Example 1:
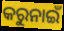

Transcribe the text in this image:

କରୁନାଇଁ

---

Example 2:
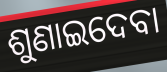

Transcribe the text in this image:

ଶୁଣାଇଦେବା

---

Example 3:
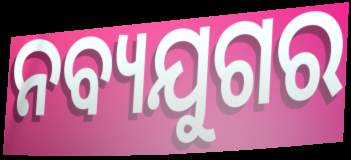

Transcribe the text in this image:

ନବ୍ୟଯୁଗର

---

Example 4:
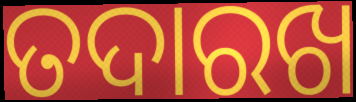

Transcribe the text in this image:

ତଦାରଖ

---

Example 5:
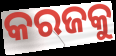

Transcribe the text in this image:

କରଜକୁ